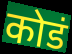
कोडं